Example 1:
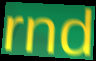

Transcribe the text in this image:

rnd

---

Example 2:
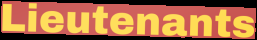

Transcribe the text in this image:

Lieutenants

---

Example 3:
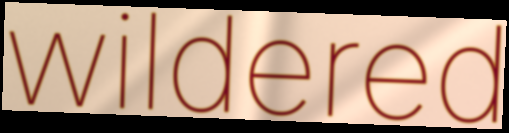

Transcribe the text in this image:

wildered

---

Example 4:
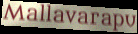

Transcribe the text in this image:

Mallavarapu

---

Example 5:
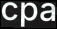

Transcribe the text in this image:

cpa